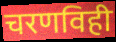
चरणविही